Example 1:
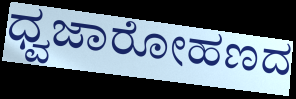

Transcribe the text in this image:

ಧ್ವಜಾರೋಹಣದ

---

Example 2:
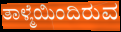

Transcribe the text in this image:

ತಾಳ್ಮೆಯಿಂದಿರುವ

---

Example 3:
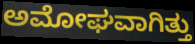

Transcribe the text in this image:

ಅಮೋಘವಾಗಿತ್ತು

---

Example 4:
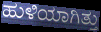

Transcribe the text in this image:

ಹುಳಿಯಾಗಿತ್ತು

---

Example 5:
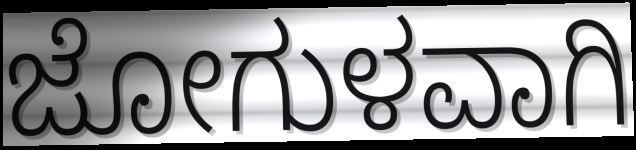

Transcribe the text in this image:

ಜೋಗುಳವಾಗಿ